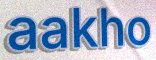
aakho